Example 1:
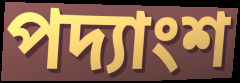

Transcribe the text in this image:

পদ্যাংশ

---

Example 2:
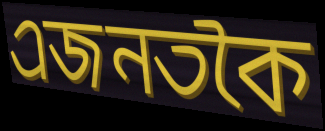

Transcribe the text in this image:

এজনতকৈ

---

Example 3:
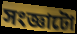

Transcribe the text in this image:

সংজ্ঞাটো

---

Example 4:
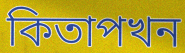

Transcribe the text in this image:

কিতাপখন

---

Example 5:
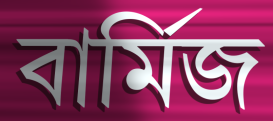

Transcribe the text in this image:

বাৰ্মিজ